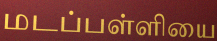
மடப்பள்ளியை